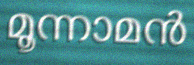
മൂന്നാമൻ